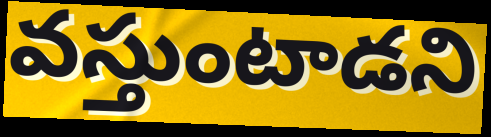
వస్తుంటాడని